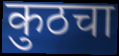
कुठचा